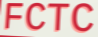
FCTC